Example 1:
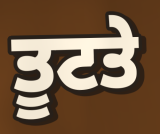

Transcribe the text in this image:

ਤੂਟਤੇ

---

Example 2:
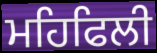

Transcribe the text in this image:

ਮਹਿਫਿਲੀ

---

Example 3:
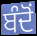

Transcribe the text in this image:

ਬੰਦੋਂ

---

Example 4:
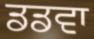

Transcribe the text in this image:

ਡਡਵਾ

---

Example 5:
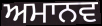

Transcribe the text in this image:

ਅਮਾਨਵ